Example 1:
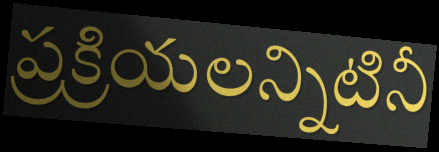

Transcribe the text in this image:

ప్రక్రియలన్నిటినీ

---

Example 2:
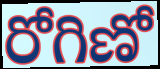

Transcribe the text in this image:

రోగిణో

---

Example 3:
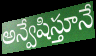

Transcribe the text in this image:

అన్వేషిస్తూనే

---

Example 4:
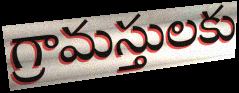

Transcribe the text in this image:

గ్రామస్తులకు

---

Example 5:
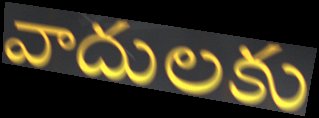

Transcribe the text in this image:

వాదులకు